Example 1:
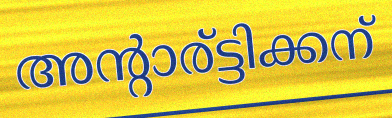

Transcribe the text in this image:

അന്റാര്ട്ടിക്കന്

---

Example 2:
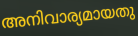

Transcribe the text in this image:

അനിവാര്യമായതു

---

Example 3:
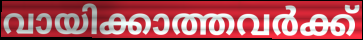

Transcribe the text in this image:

വായിക്കാത്തവർക്ക്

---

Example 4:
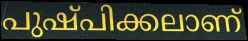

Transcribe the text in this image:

പുഷ്പിക്കലാണ്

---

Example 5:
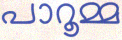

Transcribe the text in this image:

പാറൂമ്മ